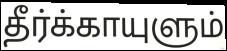
தீர்க்காயுளும்